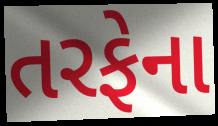
તરફેના